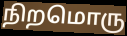
நிறமொரு